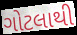
ગોટલાથી